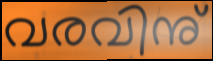
വരവിനു്